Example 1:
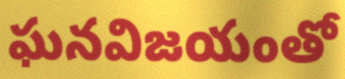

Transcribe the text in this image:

ఘనవిజయంతో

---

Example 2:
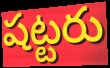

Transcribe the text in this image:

షట్టరు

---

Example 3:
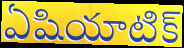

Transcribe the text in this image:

ఏషియాటిక్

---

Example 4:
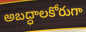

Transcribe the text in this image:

అబద్ధాలకోరుగా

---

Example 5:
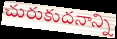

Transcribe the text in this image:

చురుకుదనాన్ని